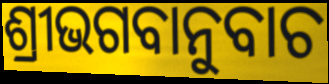
ଶ୍ରୀଭଗବାନୁବାଚ